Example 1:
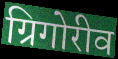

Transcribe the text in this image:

ग्रिगोरीव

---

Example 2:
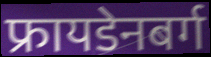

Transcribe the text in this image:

फ्रायडेनबर्ग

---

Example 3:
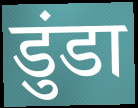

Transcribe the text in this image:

डुंडा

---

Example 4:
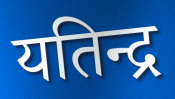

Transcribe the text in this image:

यतिन्द्र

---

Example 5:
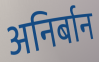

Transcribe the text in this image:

अनिर्बान